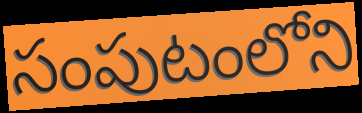
సంపుటంలోని